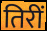
तिरीं